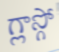
గ్లాస్గో